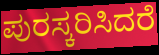
ಪುರಸ್ಕರಿಸಿದರೆ